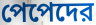
পেপেদের